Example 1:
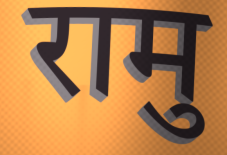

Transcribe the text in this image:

रामु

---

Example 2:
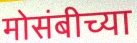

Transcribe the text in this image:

मोसंबीच्या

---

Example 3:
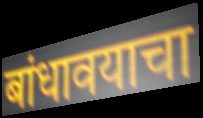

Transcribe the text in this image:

बांधावयाचा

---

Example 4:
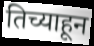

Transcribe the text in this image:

तिच्याहून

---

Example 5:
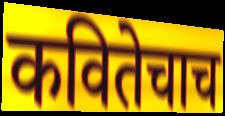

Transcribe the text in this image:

कवितेचाच